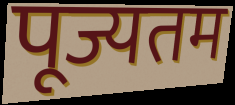
पूज्यतम